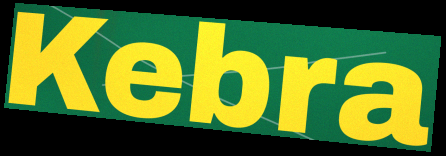
Kebra